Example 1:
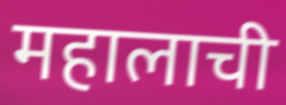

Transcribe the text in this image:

महालाची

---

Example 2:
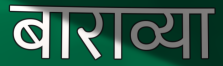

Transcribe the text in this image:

बाराव्या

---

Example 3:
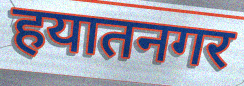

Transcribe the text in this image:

हयातनगर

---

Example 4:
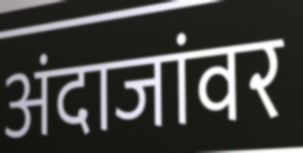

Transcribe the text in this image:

अंदाजांवर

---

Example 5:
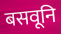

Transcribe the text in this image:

बसवूनि